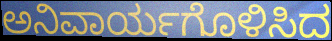
ಅನಿವಾರ್ಯಗೊಳಿಸಿದ